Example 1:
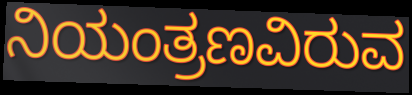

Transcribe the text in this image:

ನಿಯಂತ್ರಣವಿರುವ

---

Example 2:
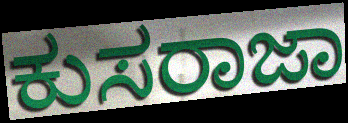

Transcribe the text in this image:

ಕುಸರಾಜಾ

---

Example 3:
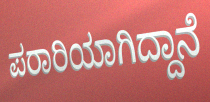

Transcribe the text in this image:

ಪರಾರಿಯಾಗಿದ್ದಾನೆ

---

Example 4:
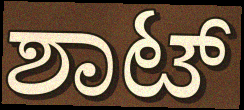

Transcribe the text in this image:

ಶಾಟ್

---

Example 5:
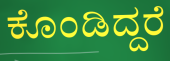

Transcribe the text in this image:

ಕೊಂಡಿದ್ದರೆ